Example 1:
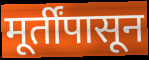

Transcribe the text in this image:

मूर्तींपासून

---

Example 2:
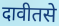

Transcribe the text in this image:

दावीतसे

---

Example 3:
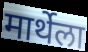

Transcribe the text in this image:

मार्थेला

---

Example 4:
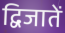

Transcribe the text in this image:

द्विजातें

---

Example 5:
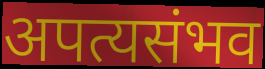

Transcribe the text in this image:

अपत्यसंभव